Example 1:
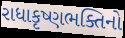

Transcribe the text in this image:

રાધાકૃષ્ણભક્તિનો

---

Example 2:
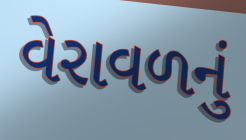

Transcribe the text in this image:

વેરાવળનું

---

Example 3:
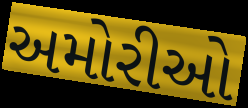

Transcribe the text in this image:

અમોરીઓ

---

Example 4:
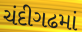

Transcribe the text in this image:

ચંદીગઢમાં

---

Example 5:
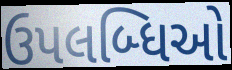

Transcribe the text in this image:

ઉપલબ્ધિઓ